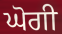
ਘੋਗੀ